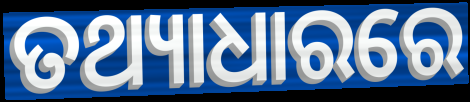
ତଥ୍ୟାଧାରରେ